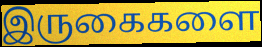
இருகைகளை